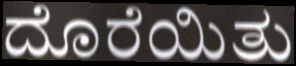
ದೊರೆಯಿತು